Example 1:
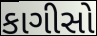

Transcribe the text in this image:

કાગીસો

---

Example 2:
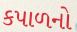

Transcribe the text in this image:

કપાળનો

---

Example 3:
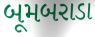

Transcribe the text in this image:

બૂમબરાડા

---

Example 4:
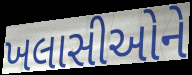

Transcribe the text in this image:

ખલાસીઓને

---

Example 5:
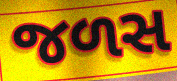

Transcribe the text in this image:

જળસ